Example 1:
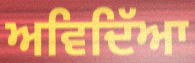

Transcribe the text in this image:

ਅਵਿਦਿੱਆ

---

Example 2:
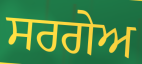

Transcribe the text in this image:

ਸਰਗੇਅ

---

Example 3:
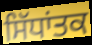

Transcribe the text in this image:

ਸਿੱਧਾਂਤਕ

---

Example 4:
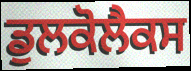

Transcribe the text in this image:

ਡੁਲਕੋਲੈਕਸ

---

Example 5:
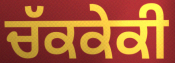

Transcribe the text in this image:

ਚੱਕਕੇਕੀ